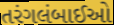
તરંગલંબાઈઓ